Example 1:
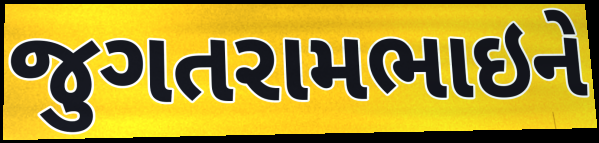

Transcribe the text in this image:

જુગતરામભાઇને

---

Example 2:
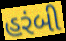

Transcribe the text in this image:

હરંબી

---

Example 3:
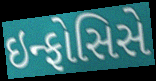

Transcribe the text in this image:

ઇન્ફોસિસે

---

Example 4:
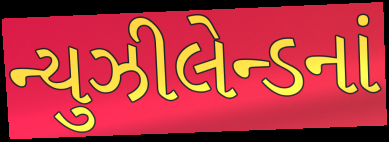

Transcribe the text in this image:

ન્યુઝીલેન્ડનાં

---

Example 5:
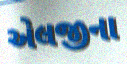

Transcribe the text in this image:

એલજીના